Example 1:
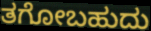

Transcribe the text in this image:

ತಗೋಬಹುದು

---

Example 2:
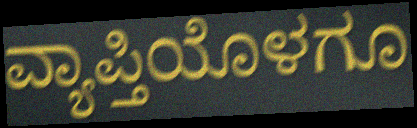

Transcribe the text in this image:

ವ್ಯಾಪ್ತಿಯೊಳಗೂ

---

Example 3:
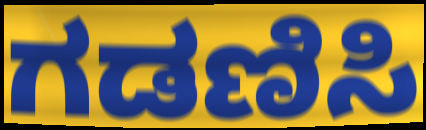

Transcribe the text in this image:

ಗಡಣಿಸಿ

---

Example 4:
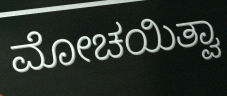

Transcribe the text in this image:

ಮೋಚಯಿತ್ವಾ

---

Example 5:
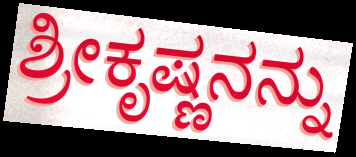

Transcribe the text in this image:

ಶ್ರೀಕೃಷ್ಣನನ್ನು